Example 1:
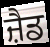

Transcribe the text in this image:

ਜ਼ੈਡ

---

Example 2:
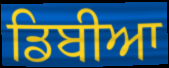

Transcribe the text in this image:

ਡਿਬੀਆ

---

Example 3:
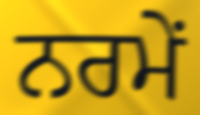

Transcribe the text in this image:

ਨਰਮੇਂ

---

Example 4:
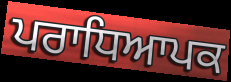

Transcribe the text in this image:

ਪਰਾਧਿਆਪਕ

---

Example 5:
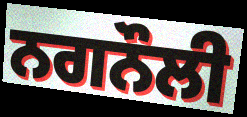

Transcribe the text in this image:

ਨਗਨੌਲੀ